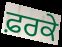
ਫ਼ਰਕੇ